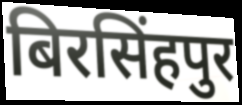
बिरसिंहपुर